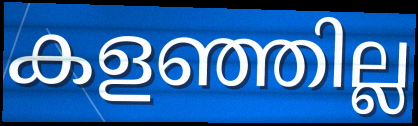
കളഞ്ഞില്ല